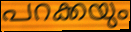
പറക്കയും